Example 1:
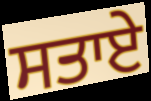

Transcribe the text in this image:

ਸਤਾਏ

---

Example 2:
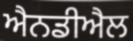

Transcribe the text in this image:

ਐਨਡੀਐਲ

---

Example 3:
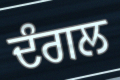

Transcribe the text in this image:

ਦੰਗਲ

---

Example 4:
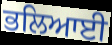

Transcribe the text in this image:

ਭਲਿਆਈ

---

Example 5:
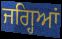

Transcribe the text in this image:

ਜਗ੍ਹਿਆਂ